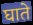
घाते